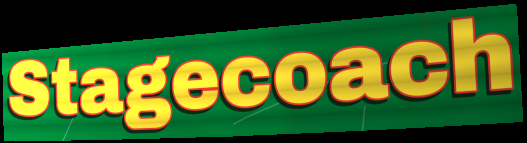
Stagecoach